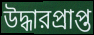
উদ্ধারপ্রাপ্ত